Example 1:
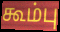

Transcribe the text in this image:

கூம்பு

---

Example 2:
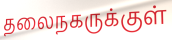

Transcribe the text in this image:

தலைநகருக்குள்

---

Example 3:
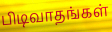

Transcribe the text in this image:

பிடிவாதங்கள்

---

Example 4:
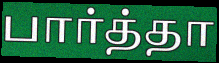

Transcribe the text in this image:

பார்த்தா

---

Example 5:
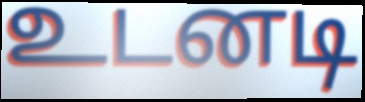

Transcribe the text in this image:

உடனடி